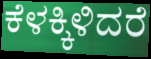
ಕೆಳಕ್ಕಿಳಿದರೆ